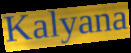
Kalyana